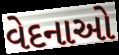
વેદનાઓ